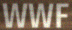
WWF